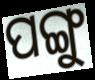
ପଙ୍ଗୁ